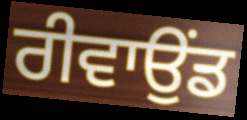
ਰੀਵਾਉਂਡ